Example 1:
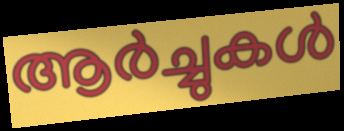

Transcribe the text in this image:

ആർച്ചുകൾ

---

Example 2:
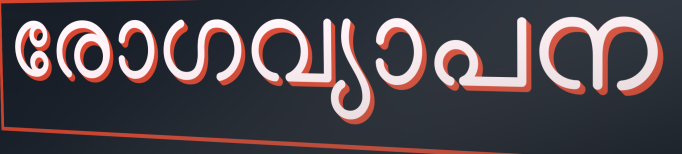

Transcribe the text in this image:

രോഗവ്യാപന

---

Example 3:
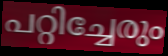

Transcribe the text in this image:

പറ്റിച്ചേരും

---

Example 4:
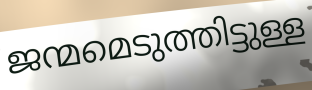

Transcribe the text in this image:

ജന്മമെടുത്തിട്ടുള്ള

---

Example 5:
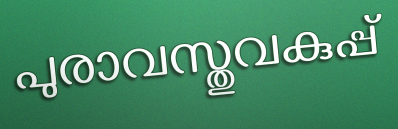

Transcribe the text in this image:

പുരാവസ്തുവകുപ്പ്